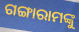
ଗଙ୍ଗାରାମଙ୍କୁ